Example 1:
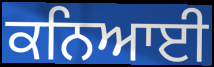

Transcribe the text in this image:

ਕਨਿਆਈ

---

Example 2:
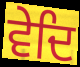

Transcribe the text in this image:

ਵੇਦਿ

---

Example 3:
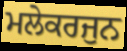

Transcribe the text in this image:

ਮਲੇਕਰਜੁਨ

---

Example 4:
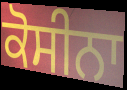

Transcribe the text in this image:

ਕੋਸੀਨਾ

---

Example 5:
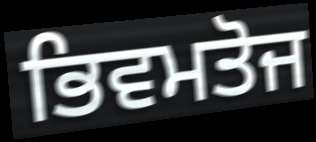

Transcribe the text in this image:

ਭਿਵਮਤੋਜ